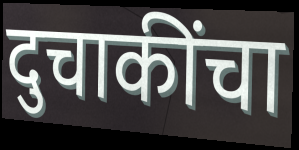
दुचाकींचा